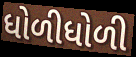
ધોળીધોળી